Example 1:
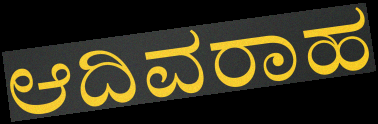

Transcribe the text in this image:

ಆದಿವರಾಹ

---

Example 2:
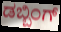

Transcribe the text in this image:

ಡಬ್ಬಿಂಗ್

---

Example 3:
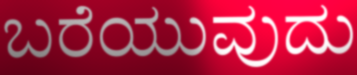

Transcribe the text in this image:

ಬರೆಯುವುದು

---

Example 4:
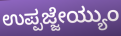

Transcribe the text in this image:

ಉಪ್ಪಜ್ಜೇಯ್ಯುಂ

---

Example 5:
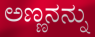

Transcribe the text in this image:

ಅಣ್ಣನನ್ನು